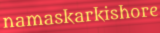
namaskarkishore